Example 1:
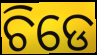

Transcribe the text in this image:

ଚିଡେ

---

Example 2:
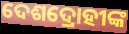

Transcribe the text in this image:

ଦେଶଦ୍ରୋହୀଙ୍କ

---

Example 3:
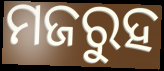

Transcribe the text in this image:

ମଜରୁହ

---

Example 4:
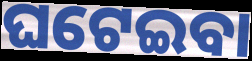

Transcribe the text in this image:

ଘଟେଇବା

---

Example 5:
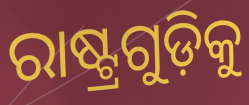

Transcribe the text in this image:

ରାଷ୍ଟ୍ରଗୁଡ଼ିକୁ